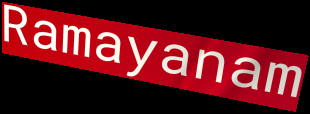
Ramayanam